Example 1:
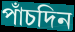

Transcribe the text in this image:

পাঁচদিন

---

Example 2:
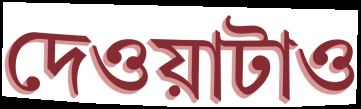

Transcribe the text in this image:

দেওয়াটাও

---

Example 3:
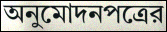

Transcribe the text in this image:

অনুমোদনপত্রের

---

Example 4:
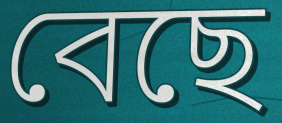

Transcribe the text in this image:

বেছে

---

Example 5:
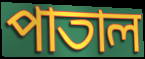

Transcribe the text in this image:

পাতাল